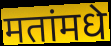
मतांमधे